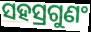
ସହସ୍ରଗୁଣଂ